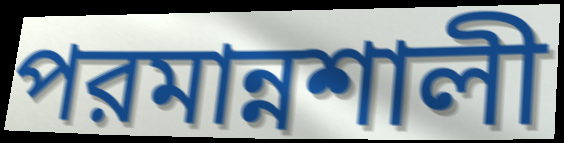
পরমান্নশালী